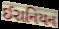
ઈરાનિયન